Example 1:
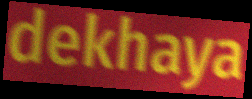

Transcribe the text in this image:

dekhaya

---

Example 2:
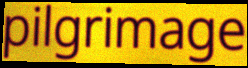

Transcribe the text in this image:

pilgrimage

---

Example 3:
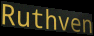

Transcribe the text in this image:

Ruthven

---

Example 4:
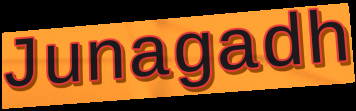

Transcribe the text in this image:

Junagadh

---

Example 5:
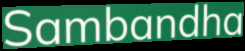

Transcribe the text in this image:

Sambandha